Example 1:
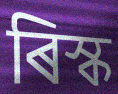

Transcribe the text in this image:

ৰিস্ক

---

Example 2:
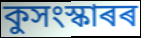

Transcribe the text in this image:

কুসংস্কাৰৰ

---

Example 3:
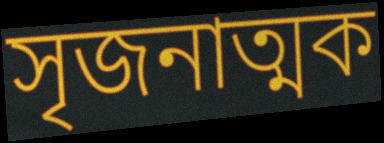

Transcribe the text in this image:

সৃজনাত্মক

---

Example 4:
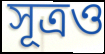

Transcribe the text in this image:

সূত্ৰও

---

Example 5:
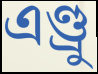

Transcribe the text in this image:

এণ্ড্ৰু